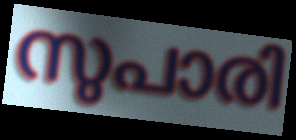
സുപാരി